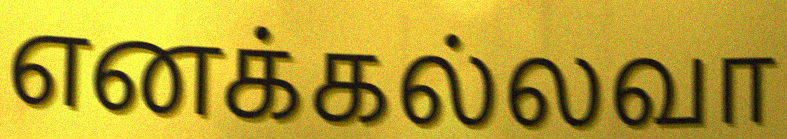
எனக்கல்லவா